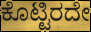
ಕೊಟ್ಟಿರದೇ